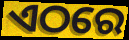
ଏଠରେ